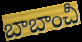
బాబాంచీ